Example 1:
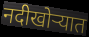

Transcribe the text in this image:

नदीखोर्‍यात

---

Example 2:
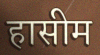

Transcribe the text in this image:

हासीम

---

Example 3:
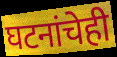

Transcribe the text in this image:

घटनांचेही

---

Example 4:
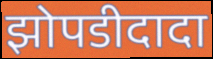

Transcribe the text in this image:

झोपडीदादा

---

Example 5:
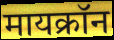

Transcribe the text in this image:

मायक्रॉन